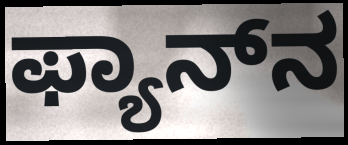
ಫ್ಯಾನ್‌ನ